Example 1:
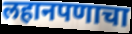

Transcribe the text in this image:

लहानपणाचा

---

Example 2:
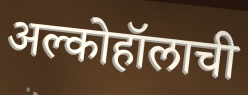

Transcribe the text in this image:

अल्कोहॉलाची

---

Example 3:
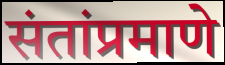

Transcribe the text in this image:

संतांप्रमाणे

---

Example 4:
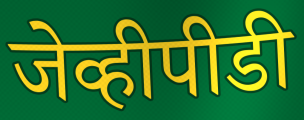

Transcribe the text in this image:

जेव्हीपीडी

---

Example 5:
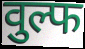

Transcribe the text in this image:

वुल्फ